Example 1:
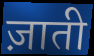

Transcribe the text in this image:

ज़ाती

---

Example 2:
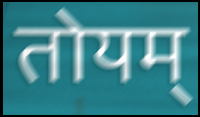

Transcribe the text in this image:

तोयम्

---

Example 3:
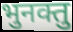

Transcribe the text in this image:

भुनक्तु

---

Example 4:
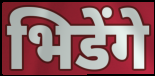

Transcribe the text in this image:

भिडेंगे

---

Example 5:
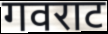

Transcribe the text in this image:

गवराट